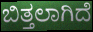
ಬಿತ್ತಲಾಗಿದೆ